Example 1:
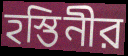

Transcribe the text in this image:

হস্তিনীর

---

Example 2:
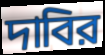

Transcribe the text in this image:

দাবির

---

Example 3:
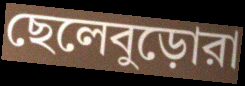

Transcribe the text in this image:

ছেলেবুড়োরা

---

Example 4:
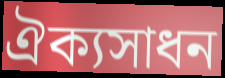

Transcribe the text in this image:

ঐক্যসাধন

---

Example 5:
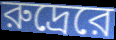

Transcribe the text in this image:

রুদ্রেরে